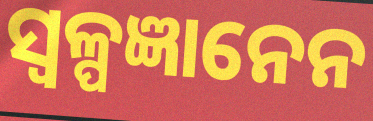
ସ୍ଵଳ୍ପଜ୍ଞାନେନ